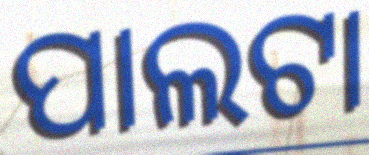
ପାଲଟା